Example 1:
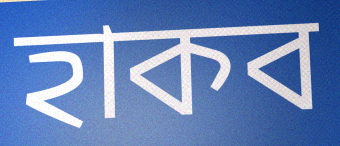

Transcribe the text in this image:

হাকব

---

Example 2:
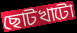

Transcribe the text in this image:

ছোটখাটো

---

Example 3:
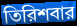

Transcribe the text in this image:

তিরিশবার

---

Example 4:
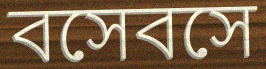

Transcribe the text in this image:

বসেবসে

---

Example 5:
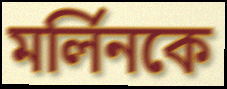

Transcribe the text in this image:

মর্লিনকে